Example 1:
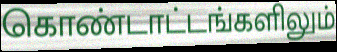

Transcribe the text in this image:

கொண்டாட்டங்களிலும்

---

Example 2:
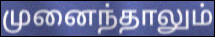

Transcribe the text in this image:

முனைந்தாலும்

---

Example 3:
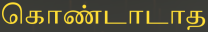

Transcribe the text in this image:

கொண்டாடாத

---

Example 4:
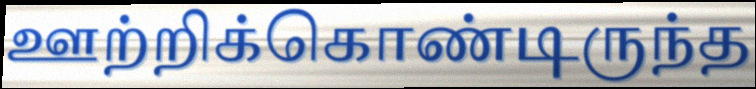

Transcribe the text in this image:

ஊற்றிக்கொண்டிருந்த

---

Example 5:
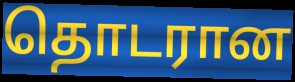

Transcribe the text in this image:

தொடரான